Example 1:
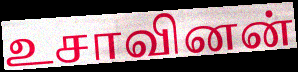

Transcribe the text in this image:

உசாவினன்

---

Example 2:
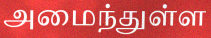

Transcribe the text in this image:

அமைந்துள்ள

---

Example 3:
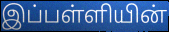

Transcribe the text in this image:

இப்பள்ளியின்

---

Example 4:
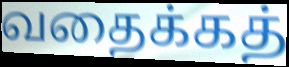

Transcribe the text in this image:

வதைக்கத்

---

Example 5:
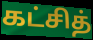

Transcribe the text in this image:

கட்சித்